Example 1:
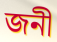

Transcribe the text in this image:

জনী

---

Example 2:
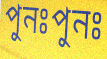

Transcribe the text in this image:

পুনঃপুনঃ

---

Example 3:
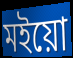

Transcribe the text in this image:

মইয়ো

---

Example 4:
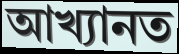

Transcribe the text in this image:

আখ্যানত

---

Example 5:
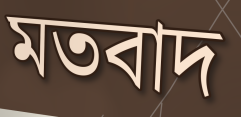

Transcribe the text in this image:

মতবাদ